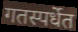
गतस्पर्धेत